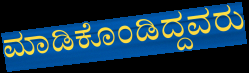
ಮಾಡಿಕೊಂಡಿದ್ದವರು